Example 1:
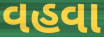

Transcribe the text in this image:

વહવા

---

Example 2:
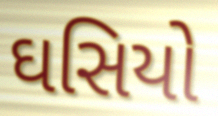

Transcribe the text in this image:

ઘસિયો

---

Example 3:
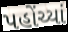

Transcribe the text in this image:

પહોંચ્યાં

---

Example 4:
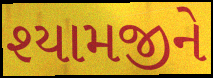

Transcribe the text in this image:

શ્યામજીને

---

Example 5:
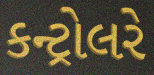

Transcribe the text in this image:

કન્ટ્રોલરે